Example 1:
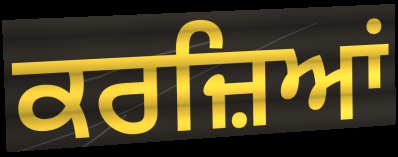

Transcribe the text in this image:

ਕਰਜ਼ਿਆਂ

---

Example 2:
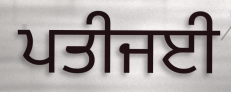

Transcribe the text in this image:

ਪਤੀਜਈ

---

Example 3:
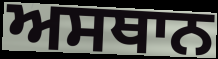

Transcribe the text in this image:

ਅਸਥਾਨ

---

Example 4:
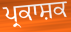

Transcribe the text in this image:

ਪ੍ਰਕਾਸ਼ਕ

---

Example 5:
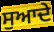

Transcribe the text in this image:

ਸੁਆਦੇ